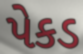
પેકડ